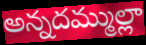
అన్నదమ్ముల్లా